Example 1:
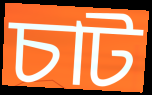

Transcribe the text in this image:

চাট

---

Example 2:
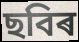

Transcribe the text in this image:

ছবিৰ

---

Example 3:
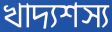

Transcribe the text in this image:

খাদ্যশস্য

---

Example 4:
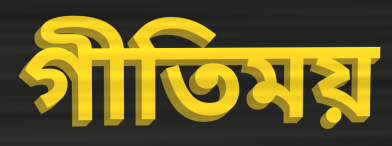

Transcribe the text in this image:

গীতিময়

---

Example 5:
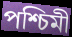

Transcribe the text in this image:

পশ্চিমী